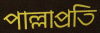
পাল্লাপ্রতি